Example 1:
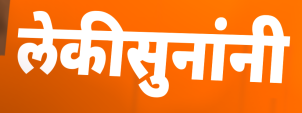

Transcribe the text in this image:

लेकीसुनांनी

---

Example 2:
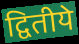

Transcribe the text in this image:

द्वितीये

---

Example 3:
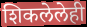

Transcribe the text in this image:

शिकलेलेही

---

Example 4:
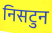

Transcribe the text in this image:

निसटुन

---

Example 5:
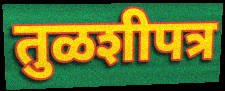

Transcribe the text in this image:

तुळशीपत्र